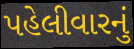
પહેલીવારનું